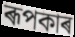
ৰূপকাৰ